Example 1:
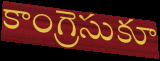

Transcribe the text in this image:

కాంగ్రెసుకూ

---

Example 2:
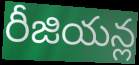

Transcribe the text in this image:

రీజియన్ల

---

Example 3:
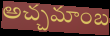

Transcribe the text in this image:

అచ్చమాంబ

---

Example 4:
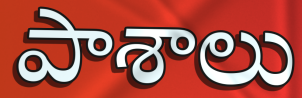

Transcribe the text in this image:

పాశాలు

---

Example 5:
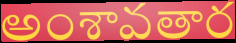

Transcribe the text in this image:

అంశావతార